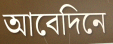
আবেদিনে